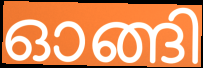
ഓങ്ങി